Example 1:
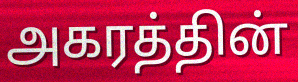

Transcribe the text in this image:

அகரத்தின்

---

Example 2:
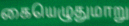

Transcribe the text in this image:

கையெழுதுமாறு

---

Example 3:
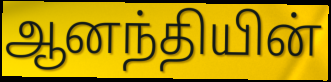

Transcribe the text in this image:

ஆனந்தியின்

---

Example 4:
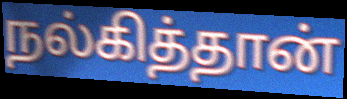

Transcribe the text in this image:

நல்கித்தான்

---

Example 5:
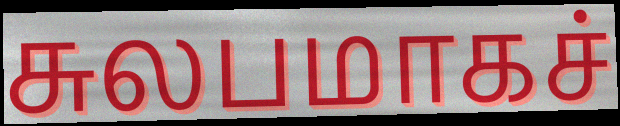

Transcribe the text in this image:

சுலபமாகச்